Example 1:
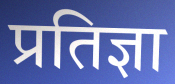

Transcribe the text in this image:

प्रतिज्ञा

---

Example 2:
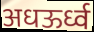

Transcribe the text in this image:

अधऊर्ध्व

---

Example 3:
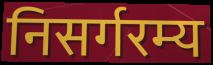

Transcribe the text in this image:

निसर्गरम्य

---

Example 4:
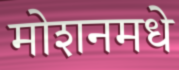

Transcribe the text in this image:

मोशनमधे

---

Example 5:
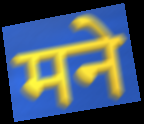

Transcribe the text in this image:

मने